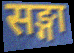
सङ्गा